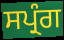
ਸਪ੍ਰੰਗ